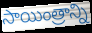
సాయింత్రాన్ని